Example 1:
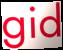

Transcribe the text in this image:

gid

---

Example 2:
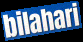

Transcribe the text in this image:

bilahari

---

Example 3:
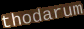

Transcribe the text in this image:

thodarum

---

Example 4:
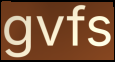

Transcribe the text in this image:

gvfs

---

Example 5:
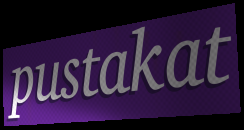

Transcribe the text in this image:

pustakat